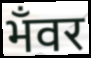
भँवर